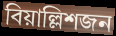
বিয়াল্লিশজন